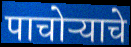
पाचोऱ्याचे